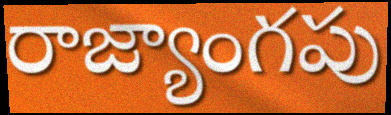
రాజ్యాంగపు